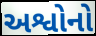
અશ્વોનો